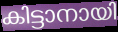
കിട്ടാനായി